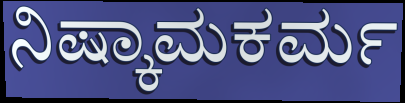
ನಿಷ್ಕಾಮಕರ್ಮ